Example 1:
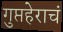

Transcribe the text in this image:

गुप्तहेराचं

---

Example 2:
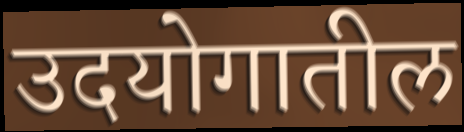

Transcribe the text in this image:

उदयोगातील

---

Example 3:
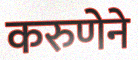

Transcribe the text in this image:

करुणेने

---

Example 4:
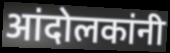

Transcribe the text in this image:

आंदोलकांनी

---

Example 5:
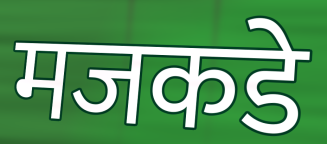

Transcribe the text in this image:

मजकडे